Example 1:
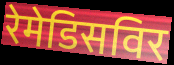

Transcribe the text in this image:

रेमेडिसविर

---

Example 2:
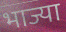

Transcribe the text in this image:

भाज्या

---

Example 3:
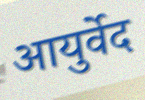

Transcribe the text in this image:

आयुर्वेद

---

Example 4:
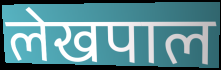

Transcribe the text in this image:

लेखपाल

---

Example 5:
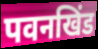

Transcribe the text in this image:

पवनखिंड